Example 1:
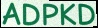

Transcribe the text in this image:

ADPKD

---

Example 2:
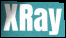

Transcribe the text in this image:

XRay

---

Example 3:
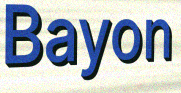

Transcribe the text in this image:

Bayon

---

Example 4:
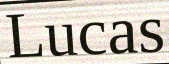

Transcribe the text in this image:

Lucas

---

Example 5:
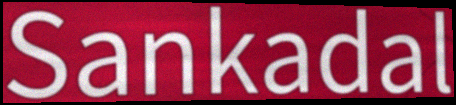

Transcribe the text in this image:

Sankadal